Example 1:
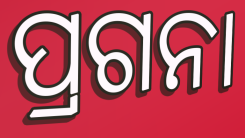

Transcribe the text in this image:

ପ୍ରଗନା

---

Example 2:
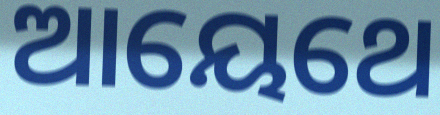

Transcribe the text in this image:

ଆୟେଥେ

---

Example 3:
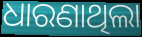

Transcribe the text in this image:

ଧାରଣାଥିଲା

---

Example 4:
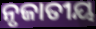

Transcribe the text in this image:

ନୃଜାତୀୟ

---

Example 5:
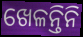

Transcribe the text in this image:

ଖେଳନ୍ତିନି